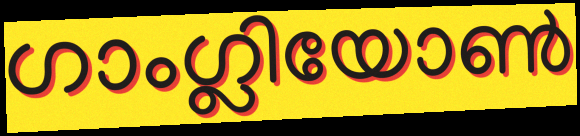
ഗാംഗ്ലിയോൺ